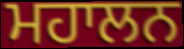
ਮਹਾਲਨ